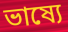
ভাষ্যে